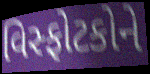
વિસ્ફોટકોને